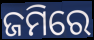
ଜମିରେ